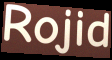
Rojid